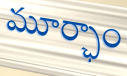
మూర్ఛాం